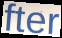
fter